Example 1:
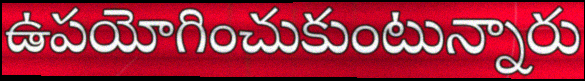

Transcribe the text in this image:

ఉపయోగించుకుంటున్నారు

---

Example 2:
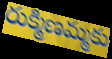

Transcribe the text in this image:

రుక్మిణమ్మకు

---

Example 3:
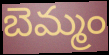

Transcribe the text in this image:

బెమ్మం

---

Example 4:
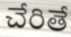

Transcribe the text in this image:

చేరితే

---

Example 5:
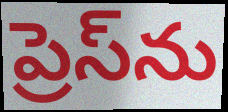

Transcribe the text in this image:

ప్రెస్‌ను